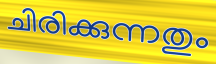
ചിരിക്കുന്നതും